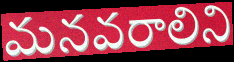
మనవరాలిని